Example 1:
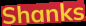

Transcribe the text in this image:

Shanks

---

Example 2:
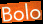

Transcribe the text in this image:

Bolo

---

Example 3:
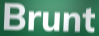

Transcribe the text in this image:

Brunt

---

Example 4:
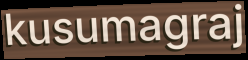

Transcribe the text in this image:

kusumagraj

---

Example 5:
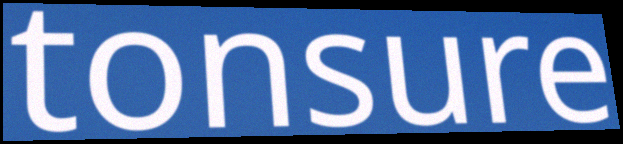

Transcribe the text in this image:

tonsure